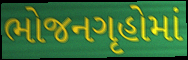
ભોજનગૃહોમાં